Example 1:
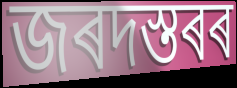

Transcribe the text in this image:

জৰদস্তৰৰ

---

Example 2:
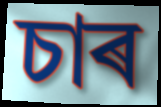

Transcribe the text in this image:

চাৰ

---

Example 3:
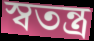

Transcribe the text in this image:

স্বতন্ত্ৰ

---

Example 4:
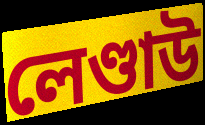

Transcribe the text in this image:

লেণ্ডাউ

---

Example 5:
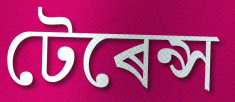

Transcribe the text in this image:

টেৰেন্স